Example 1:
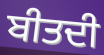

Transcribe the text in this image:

ਬੀਤਦੀ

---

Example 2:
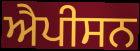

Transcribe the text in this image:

ਐਪੀਸਨ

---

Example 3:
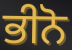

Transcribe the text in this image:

ਭੀਨੋ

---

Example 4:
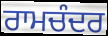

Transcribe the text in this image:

ਰਾਮਚੰਦਰ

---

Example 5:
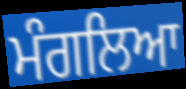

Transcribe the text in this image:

ਮੰਗਲਿਆ